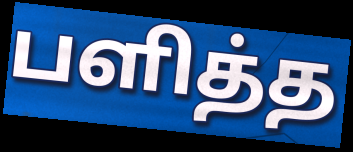
பளித்த